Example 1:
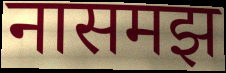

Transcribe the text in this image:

नासमझ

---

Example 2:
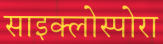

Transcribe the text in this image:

साइक्लोस्पोरा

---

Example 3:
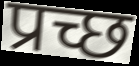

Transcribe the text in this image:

प्रच्छ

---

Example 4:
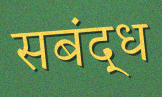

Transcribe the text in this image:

सबंद्ध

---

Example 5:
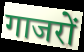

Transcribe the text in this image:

गाजरों